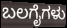
ಬಲಗೈಗಳು